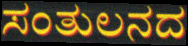
ಸಂತುಲನದ